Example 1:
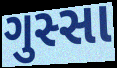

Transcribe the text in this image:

ગુસ્સા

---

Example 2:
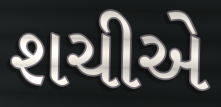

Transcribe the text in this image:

શચીએ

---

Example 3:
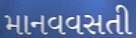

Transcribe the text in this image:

માનવવસતી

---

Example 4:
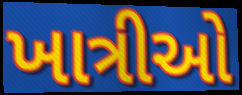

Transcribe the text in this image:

ખાત્રીઓ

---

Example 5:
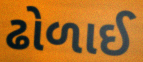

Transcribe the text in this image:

ઢોળાઈ